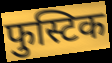
फुस्टिक